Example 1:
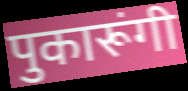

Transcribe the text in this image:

पुकारूंगी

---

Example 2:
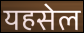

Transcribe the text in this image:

यहसेल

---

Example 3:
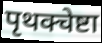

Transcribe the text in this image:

पृथक्चेष्टा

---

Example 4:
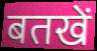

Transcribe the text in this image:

बतखें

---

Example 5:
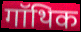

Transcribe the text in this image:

गॉथिक